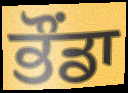
ਭੌਂਡਾ